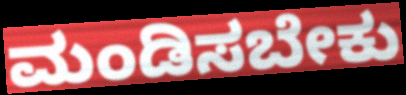
ಮಂಡಿಸಬೇಕು